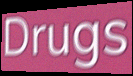
Drugs